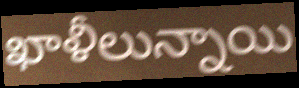
ఖాళీలున్నాయి